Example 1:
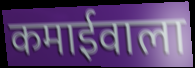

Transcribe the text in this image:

कमाईवाला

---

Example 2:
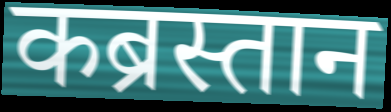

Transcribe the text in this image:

कब्रस्तान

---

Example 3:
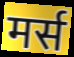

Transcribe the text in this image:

मर्स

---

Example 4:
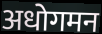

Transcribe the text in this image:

अधोगमन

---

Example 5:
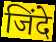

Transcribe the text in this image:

जिंदे